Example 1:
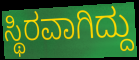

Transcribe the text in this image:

ಸ್ಥಿರವಾಗಿದ್ದು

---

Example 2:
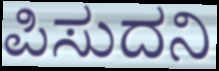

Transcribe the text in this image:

ಪಿಸುದನಿ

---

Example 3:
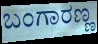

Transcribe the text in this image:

ಬಂಗಾರಣ್ಣ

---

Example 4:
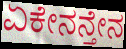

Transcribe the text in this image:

ಏಕೇನನ್ತೇನ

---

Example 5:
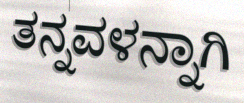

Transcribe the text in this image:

ತನ್ನವಳನ್ನಾಗಿ